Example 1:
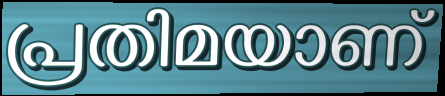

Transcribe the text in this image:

പ്രതിമയാണ്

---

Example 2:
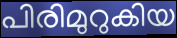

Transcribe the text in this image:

പിരിമുറുകിയ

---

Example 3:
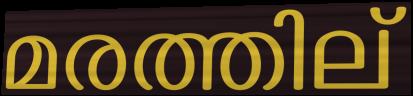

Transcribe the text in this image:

മരത്തില്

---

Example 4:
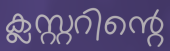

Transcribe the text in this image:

ക്ലസ്റ്ററിന്റെ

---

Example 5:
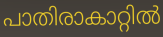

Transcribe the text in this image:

പാതിരാകാറ്റിൽ